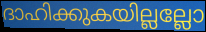
ദാഹിക്കുകയില്ലല്ലോ